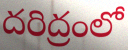
దరిద్రంలో